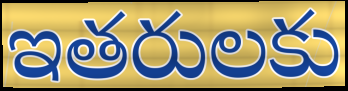
ఇతరులకు